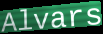
Alvars